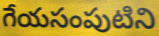
గేయసంపుటిని